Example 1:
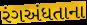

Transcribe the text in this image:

રંગઅંધતાના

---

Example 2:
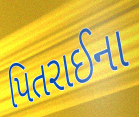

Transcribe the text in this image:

પિતરાઈના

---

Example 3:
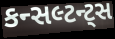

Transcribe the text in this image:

કન્સલ્ટન્ટ્સ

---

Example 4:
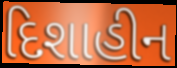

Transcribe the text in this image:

દિશાહીન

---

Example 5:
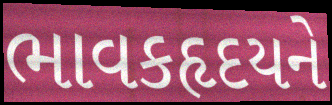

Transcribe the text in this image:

ભાવકહૃદયને